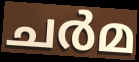
ചർമ